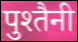
पुश्तैनी